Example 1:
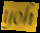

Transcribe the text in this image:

yoh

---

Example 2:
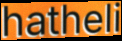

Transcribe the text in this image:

hatheli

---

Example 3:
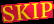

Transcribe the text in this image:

SKIP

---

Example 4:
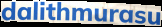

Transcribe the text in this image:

dalithmurasu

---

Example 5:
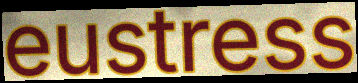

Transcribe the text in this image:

eustress